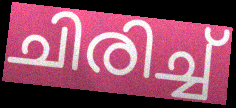
ചിരിച്ച്